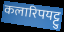
कलारिपयट्टु